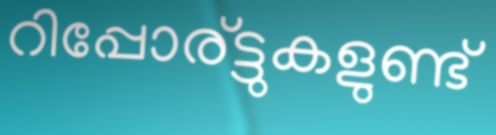
റിപ്പോര്ട്ടുകളുണ്ട്